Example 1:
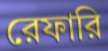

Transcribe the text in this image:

রেফারি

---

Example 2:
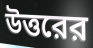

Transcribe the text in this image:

উত্তরের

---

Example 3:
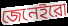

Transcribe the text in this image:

জেনেইরো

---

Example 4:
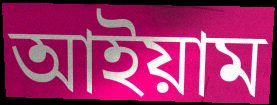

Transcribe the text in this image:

আইয়াম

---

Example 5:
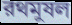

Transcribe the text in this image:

রথমুষল